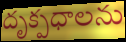
దృక్పధాలను